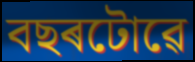
বছৰটোৱে